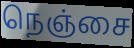
நெஞ்சை